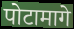
पोटामागे